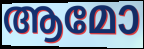
ആമോ